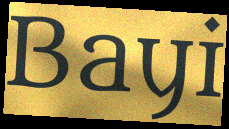
Bayi